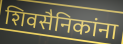
शिवसैनिकांना